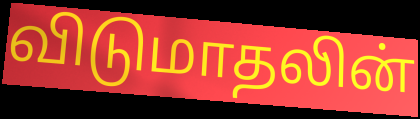
விடுமாதலின்